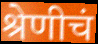
श्रेणीचं